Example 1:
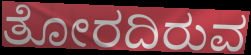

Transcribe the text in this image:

ತೋರದಿರುವ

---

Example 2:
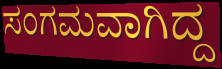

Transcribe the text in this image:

ಸಂಗಮವಾಗಿದ್ದ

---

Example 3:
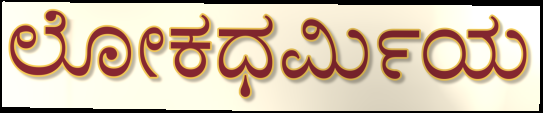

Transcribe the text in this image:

ಲೋಕಧರ್ಮಿಯ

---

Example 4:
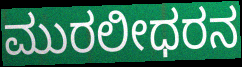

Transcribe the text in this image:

ಮುರಲೀಧರನ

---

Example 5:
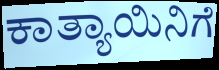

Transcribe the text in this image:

ಕಾತ್ಯಾಯಿನಿಗೆ